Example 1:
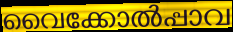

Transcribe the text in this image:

വൈക്കോൽപ്പാവ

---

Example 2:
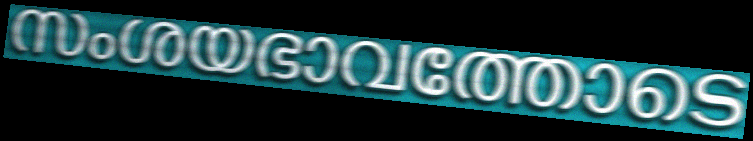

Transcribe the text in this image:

സംശയഭാവത്തോടെ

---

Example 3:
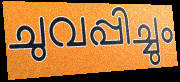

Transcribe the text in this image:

ചുവപ്പിച്ചും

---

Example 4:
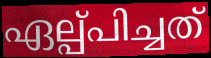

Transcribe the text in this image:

ഏല്പ്പിച്ചത്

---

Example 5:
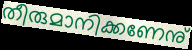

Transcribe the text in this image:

തീരുമാനിക്കണേനു്